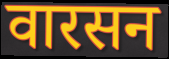
वारसन